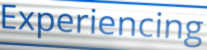
Experiencing